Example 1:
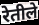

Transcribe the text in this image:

रेतीले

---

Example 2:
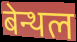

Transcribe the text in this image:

बेन्थल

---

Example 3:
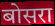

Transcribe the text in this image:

बोसरा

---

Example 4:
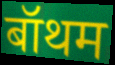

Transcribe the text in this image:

बॉथम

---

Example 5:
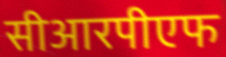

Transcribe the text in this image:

सीआरपीएफ